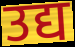
उद्य